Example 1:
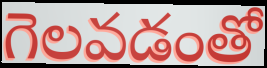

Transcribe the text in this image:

గెలవడంతో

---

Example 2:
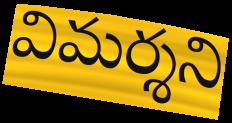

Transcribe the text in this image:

విమర్శని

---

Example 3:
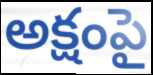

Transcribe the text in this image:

అక్షంపై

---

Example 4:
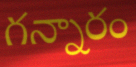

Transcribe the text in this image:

గన్నారం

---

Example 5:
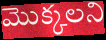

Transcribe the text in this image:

మొక్కలని